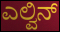
ಎಲ್ವಿನ್